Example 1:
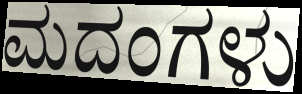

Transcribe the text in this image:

ಮದಂಗಳು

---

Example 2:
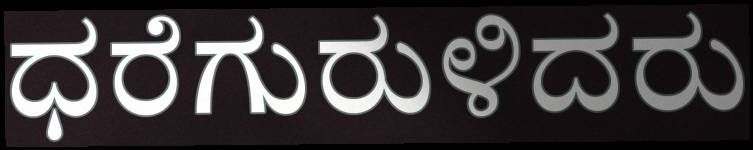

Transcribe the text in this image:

ಧರೆಗುರುಳಿದರು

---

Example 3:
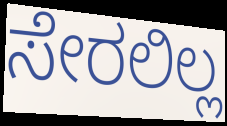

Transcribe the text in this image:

ಸೇರಲಿಲ್ಲ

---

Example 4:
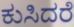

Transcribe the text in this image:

ಕುಸಿದರೆ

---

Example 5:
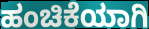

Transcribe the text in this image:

ಹಂಚಿಕೆಯಾಗಿ